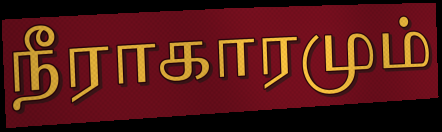
நீராகாரமும்